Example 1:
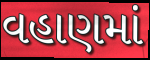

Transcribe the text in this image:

વહાણમાં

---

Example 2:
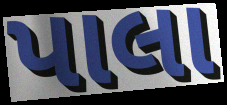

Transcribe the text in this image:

પાલા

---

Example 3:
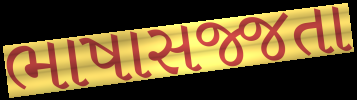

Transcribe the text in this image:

ભાષાસજ્જતા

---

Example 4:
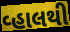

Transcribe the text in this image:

વ્હાલથી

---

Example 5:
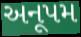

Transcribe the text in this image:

અનૂપમ